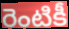
రెంటికీ